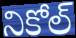
నికోల్